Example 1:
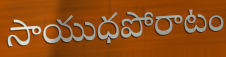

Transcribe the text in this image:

సాయుధపోరాటం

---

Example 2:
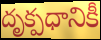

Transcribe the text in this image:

దృక్పధానికీ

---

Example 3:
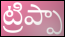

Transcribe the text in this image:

ట్రిప్పా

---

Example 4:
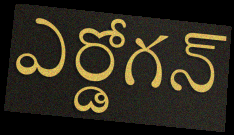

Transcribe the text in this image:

ఎర్డోగన్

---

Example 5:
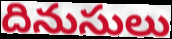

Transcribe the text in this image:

దినుసులు